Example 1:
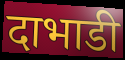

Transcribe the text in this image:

दाभाडी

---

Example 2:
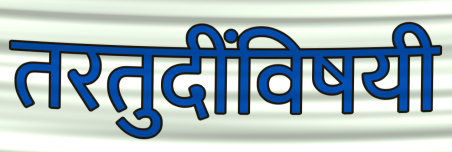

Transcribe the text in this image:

तरतुदींविषयी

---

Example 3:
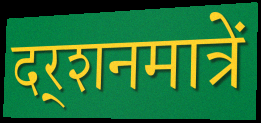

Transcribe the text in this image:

दर्शनमात्रें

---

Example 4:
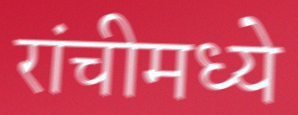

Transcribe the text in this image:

रांचीमध्ये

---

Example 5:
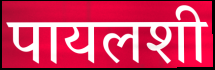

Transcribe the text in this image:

पायलशी